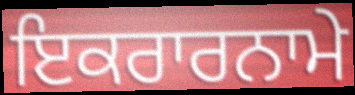
ਇਕਰਾਰਨਾਮੇ